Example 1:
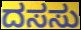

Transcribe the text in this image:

ದಸಸು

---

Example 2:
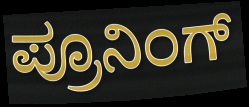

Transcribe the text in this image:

ಪ್ರೂನಿಂಗ್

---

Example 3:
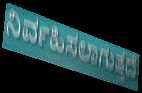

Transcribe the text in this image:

ನಿರ್ವಹಿಸಲಾಗುತ್ತದೆ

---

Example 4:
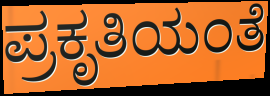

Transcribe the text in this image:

ಪ್ರಕೃತಿಯಂತೆ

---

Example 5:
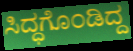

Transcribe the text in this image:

ಸಿದ್ಧಗೊಂಡಿದ್ದ